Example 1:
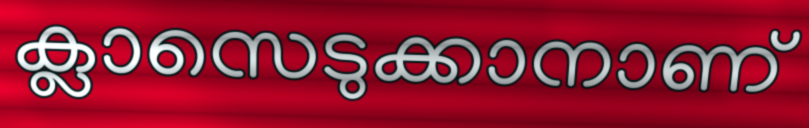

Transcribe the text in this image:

ക്ലാസെടുക്കാനാണ്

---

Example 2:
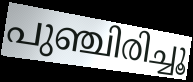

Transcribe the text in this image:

പുഞ്ചിരിച്ചൂ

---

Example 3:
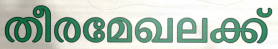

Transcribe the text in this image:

തീരമേഖലക്ക്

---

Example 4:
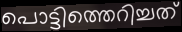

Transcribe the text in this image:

പൊട്ടിത്തെറിച്ചത്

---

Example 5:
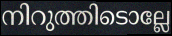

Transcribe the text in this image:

നിറുത്തിടൊല്ലേ